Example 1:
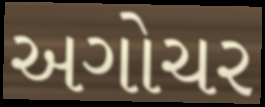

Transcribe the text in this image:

અગોચર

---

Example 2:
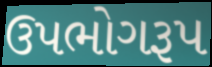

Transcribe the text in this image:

ઉપભોગરૂપ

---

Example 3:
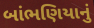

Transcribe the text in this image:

બાંભણિયાનું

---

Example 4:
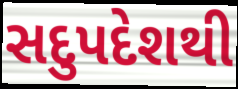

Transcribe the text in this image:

સદુપદેશથી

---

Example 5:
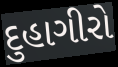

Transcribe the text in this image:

દુહાગીરો